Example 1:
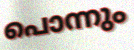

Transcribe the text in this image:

പൊന്നും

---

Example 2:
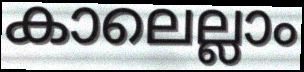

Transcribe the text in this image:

കാലെല്ലാം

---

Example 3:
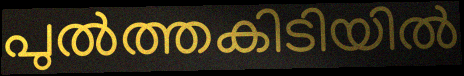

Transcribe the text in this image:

പുൽത്തകിടിയിൽ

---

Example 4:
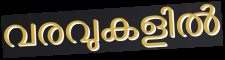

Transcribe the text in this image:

വരവുകളിൽ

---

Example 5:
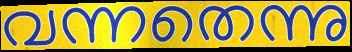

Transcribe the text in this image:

വന്നതെന്നു